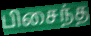
பிசைந்த